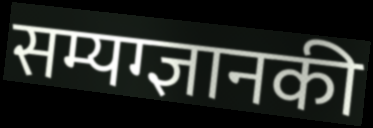
सम्यग्ज्ञानकी